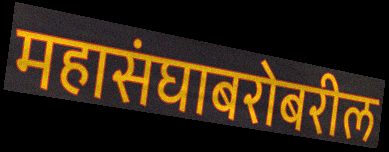
महासंघाबरोबरील